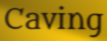
Caving